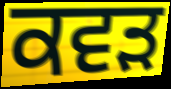
ਕਵੜ